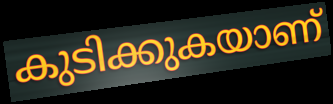
കുടിക്കുകയാണ്